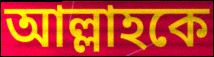
আল্লাহকে